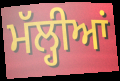
ਮੱਲ੍ਹੀਆਂ